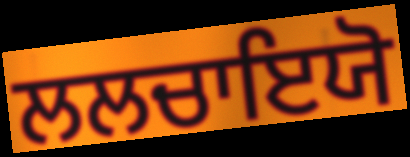
ਲਲਚਾਇਯੋ